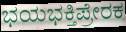
ಭಯಭಕ್ತಿಪ್ರೇರಕ